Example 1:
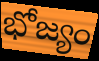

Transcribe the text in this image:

భోజ్యం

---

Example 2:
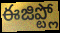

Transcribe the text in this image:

ఈజిప్ట్లో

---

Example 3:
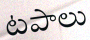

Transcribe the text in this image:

టపాలు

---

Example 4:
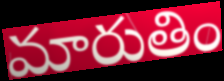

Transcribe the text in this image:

మారుతిం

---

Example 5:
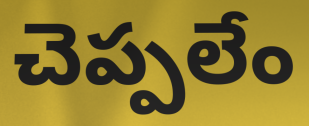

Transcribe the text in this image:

చెప్పలేం